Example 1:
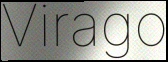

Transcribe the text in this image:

Virago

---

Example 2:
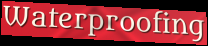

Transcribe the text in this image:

Waterproofing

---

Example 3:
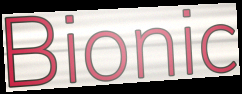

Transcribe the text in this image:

Bionic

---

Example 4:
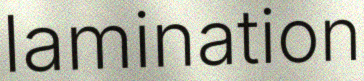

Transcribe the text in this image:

lamination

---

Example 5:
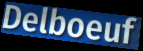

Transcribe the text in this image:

Delboeuf